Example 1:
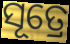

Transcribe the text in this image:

ସୂତ୍ରେ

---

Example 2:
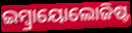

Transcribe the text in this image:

ଇମ୍ବ୍ରାୟୋଲୋଜିଷ୍ଟ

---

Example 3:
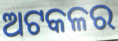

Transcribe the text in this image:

ଅଟକଳର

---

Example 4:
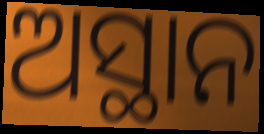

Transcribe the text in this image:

ଅସ୍ଥାନ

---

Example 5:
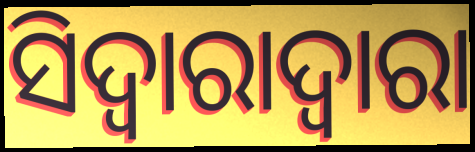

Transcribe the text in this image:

ସିଦ୍ୱାରାଦ୍ୱାରା